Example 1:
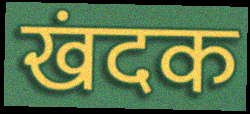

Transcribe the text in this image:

खंदक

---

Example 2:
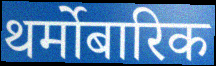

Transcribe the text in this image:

थर्मोबारिक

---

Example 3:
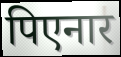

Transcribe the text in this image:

पिएनार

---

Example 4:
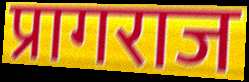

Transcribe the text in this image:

प्रागराज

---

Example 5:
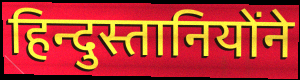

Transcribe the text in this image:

हिन्दुस्तानियोंने